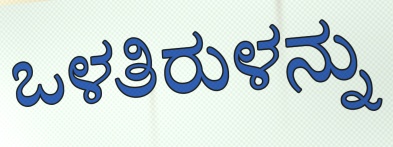
ಒಳತಿರುಳನ್ನು